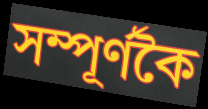
সম্পূৰ্ণকৈ